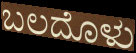
ಬಲದೊಳು